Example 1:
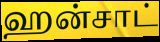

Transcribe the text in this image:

ஹன்சாட்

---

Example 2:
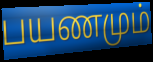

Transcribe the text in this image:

பயணமும்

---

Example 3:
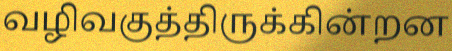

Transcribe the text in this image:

வழிவகுத்திருக்கின்றன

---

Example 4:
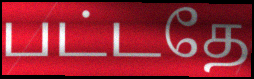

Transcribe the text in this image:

பட்டதே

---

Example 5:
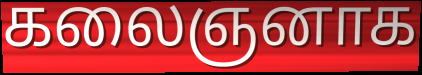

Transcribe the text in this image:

கலைஞனாக